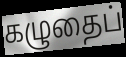
கழுதைப்